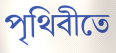
পৃথিবীতে